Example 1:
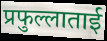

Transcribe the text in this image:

प्रफुल्लाताई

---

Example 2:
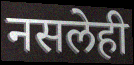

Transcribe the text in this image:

नसलेही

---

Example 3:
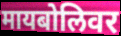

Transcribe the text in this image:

मायबोलिवर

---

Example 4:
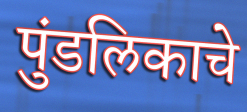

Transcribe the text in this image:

पुंडलिकाचे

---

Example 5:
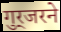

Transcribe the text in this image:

गुर्जरने